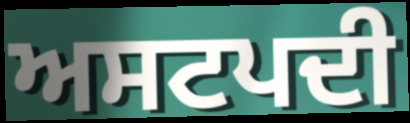
ਅਸਟਪਦੀ